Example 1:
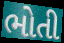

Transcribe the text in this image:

ભોતી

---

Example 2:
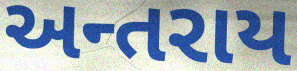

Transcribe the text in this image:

અન્તરાય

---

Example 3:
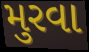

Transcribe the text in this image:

મુરવા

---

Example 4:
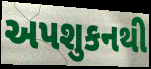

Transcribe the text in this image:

અપશુકનથી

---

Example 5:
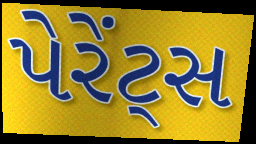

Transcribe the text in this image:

પેરેંટ્સ